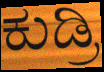
ಕುಡ್ರಿ